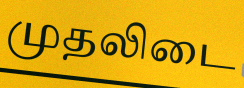
முதலிடை